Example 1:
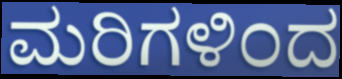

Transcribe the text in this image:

ಮರಿಗಳಿಂದ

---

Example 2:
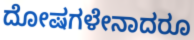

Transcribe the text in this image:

ದೋಷಗಳೇನಾದರೂ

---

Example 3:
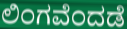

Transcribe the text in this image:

ಲಿಂಗವೆಂದಡೆ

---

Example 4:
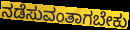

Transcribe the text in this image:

ನಡೆಸುವಂತಾಗಬೇಕು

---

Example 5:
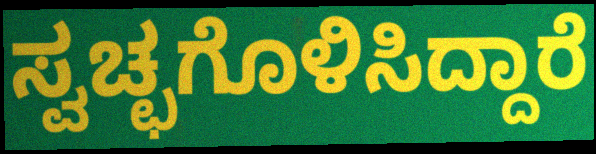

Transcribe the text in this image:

ಸ್ವಚ್ಛಗೊಳಿಸಿದ್ದಾರೆ